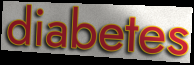
diabetes